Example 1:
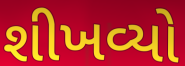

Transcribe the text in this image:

શીખવ્યો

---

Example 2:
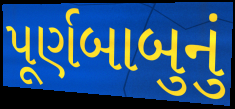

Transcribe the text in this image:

પૂર્ણબાબુનું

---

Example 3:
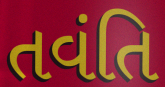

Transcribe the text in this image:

તવંતિ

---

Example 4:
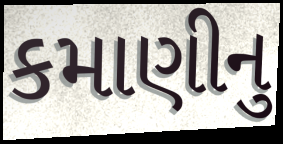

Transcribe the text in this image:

કમાણીનુ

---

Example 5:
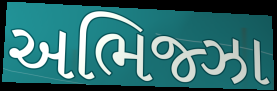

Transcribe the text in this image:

અભિજ્ઝા